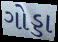
ગોડ્ડા